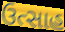
ઉત્સાહ